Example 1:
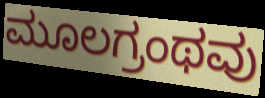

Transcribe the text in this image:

ಮೂಲಗ್ರಂಥವು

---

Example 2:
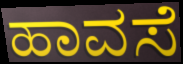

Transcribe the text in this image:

ಹಾವಸೆ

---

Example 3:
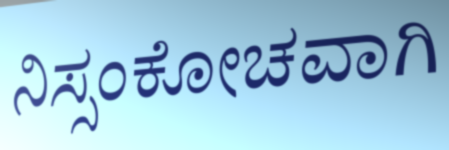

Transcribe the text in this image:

ನಿಸ್ಸಂಕೋಚವಾಗಿ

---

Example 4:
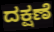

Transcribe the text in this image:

ದಕ್ಷಣೆ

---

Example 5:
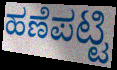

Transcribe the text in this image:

ಹಣೆಪಟ್ಟಿ